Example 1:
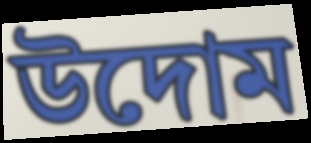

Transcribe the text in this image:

উদোম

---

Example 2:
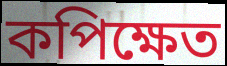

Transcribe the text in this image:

কপিক্ষেত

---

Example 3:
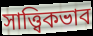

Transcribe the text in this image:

সাত্ত্বিকভাব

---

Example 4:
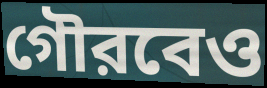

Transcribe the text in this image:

গৌরবেও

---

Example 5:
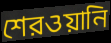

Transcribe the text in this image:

শেরওয়ানি